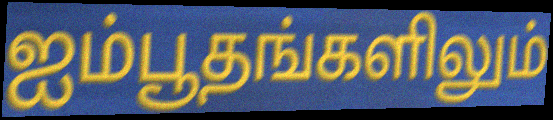
ஐம்பூதங்களிலும்